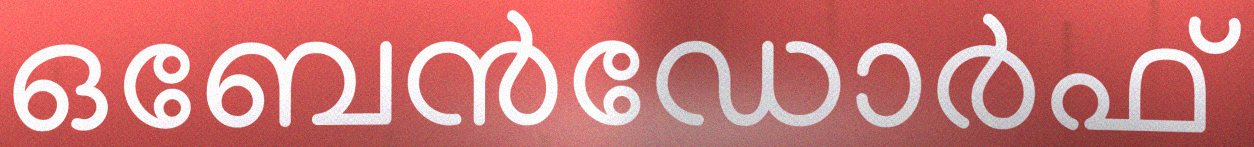
ഒബേൻഡോർഫ്